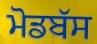
ਮੋਡਬੱਸ